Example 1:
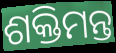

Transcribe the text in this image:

ଶକ୍ତିମନ୍ତ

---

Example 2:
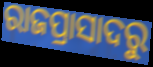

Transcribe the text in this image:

ରାଜପ୍ରାସାଦରୁ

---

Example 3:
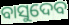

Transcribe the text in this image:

ବାସୁଦେବ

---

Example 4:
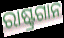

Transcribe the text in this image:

ରାଷ୍ଟ୍ରଗାନ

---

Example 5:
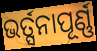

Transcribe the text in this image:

ଭର୍ତ୍ସନାପୂର୍ଣ୍ଣ